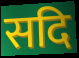
सदि